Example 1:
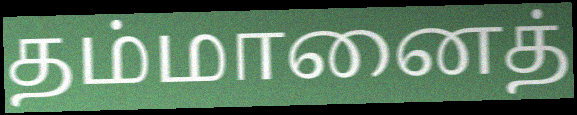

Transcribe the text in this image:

தம்மானைத்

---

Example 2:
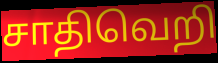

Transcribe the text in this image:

சாதிவெறி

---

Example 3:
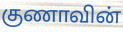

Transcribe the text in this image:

குணாவின்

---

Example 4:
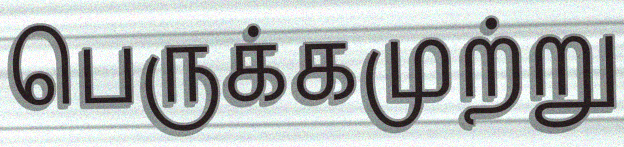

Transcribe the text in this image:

பெருக்கமுற்று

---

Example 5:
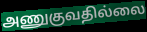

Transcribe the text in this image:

அணுகுவதில்லை